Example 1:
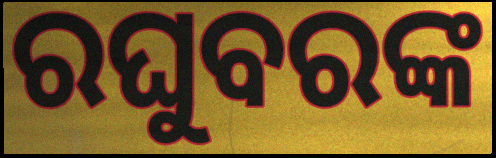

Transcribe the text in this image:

ରଘୁବରଙ୍କ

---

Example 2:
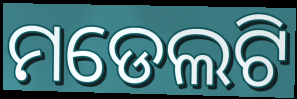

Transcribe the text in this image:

ମଡେଲଟି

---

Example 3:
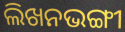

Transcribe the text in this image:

ଲିଖନଭଙ୍ଗୀ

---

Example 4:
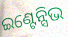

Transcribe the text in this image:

ଇଣ୍ଟେନ୍ସିଭ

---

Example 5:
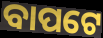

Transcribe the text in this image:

ବାପଟେ